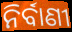
ନିର୍ବାଣୀ